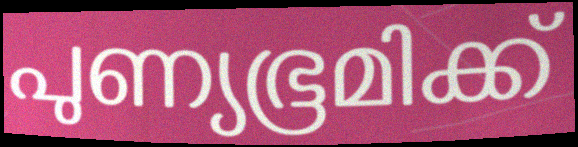
പുണ്യഭൂമിക്ക്